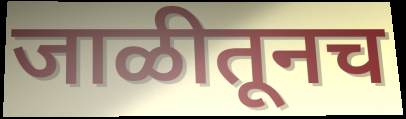
जाळीतूनच